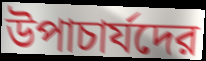
উপাচার্যদের